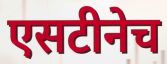
एसटीनेच